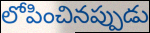
లోపించినప్పుడు